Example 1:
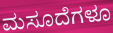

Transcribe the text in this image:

ಮಸೂದೆಗಳೂ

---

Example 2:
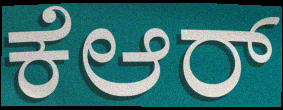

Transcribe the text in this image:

ಕೆಆರ್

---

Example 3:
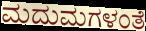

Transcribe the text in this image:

ಮದುಮಗಳಂತೆ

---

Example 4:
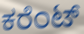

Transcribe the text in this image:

ಕರೆಂಟ್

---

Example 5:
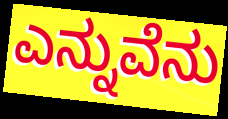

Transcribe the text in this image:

ಎನ್ನುವೆನು